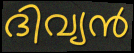
ദിവ്യൻ